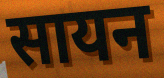
सायन